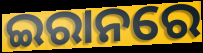
ଇରାନରେ